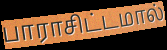
பாராசிட்டமால்